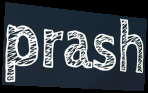
prash